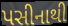
પસીનાથી